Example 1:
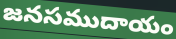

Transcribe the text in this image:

జనసముదాయం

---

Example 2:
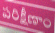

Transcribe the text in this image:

పరిక్షీణాం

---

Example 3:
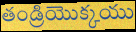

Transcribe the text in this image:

తండ్రియొక్కయు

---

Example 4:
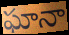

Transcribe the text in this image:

ఘానా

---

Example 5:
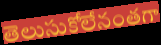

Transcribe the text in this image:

తెలుసుకోలేనంతగా